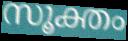
സൂക്തം